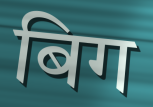
बिग